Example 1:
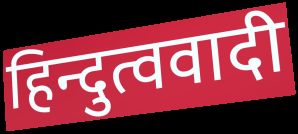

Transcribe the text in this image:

हिन्दुत्ववादी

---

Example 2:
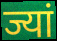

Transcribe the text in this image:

ज्यां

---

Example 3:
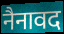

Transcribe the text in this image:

नैनावद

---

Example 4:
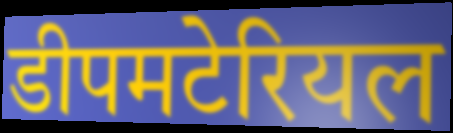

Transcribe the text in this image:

डीपमटेरियल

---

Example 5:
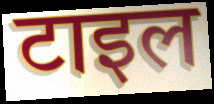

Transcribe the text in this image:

टाइल